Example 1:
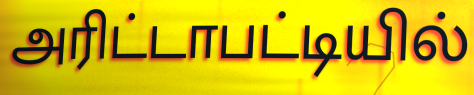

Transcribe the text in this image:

அரிட்டாபட்டியில்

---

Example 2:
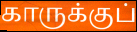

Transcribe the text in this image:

காருக்குப்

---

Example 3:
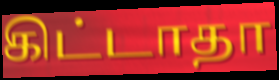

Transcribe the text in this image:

கிட்டாதா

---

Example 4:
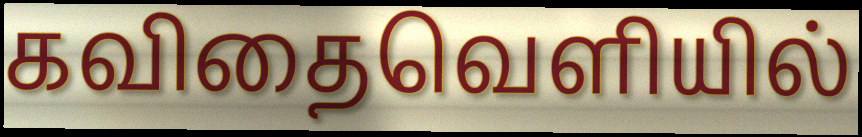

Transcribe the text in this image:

கவிதைவெளியில்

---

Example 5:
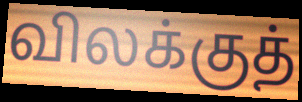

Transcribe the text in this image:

விலக்குத்